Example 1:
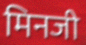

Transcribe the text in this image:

मिनजी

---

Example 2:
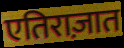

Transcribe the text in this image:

एतिराज़ात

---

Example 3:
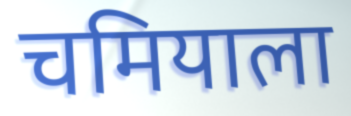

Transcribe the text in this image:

चमियाला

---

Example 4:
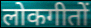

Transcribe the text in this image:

लोकगीतों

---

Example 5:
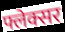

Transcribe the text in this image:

फ्लेक्सर